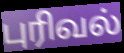
புரிவல்